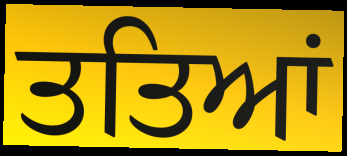
ਤਤਿਆਂ